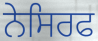
ਨੇਸਿਰਫ